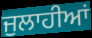
ਜੁਲਾਹੀਆਂ